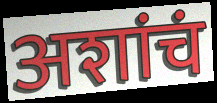
अशांचं